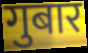
गुबार